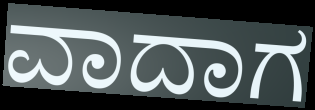
ವಾದಾಗ